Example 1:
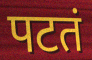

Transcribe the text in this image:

पटतं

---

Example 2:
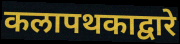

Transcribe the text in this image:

कलापथकाद्वारे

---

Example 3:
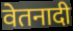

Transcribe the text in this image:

वेतनादी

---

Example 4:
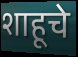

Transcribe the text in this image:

शाहूचे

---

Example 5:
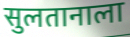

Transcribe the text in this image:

सुलतानाला